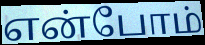
என்போம்